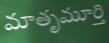
మాతృమూర్తి